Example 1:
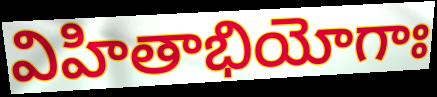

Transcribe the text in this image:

విహితాభియోగాః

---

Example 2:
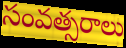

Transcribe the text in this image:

సంవత్సరాలు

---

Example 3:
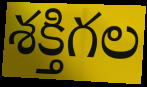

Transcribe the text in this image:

శక్తిగల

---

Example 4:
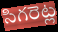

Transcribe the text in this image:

సిగరెట్ల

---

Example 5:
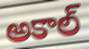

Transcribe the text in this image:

అకాల్